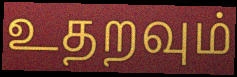
உதறவும்